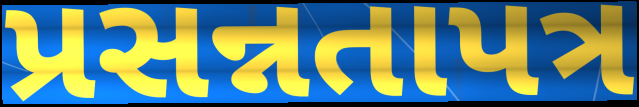
પ્રસન્નતાપત્ર